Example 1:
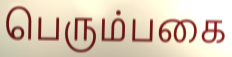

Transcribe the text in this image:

பெரும்பகை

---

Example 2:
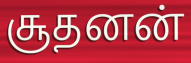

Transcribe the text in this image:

சூதனன்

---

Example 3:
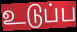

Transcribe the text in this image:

உடுப்ப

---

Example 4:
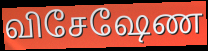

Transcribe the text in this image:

விசேஷேண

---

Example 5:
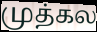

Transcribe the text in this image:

முத்கல